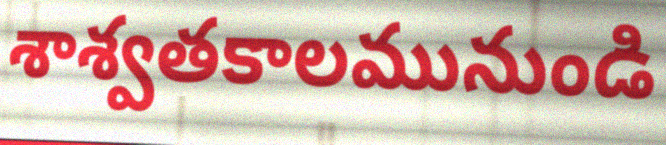
శాశ్వతకాలమునుండి